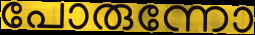
പോരുന്നോ